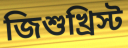
জিশুখ্রিস্ট